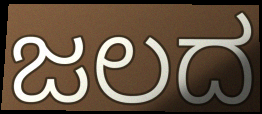
ಜಲದ